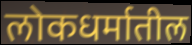
लोकधर्मातील